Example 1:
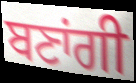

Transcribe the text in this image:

ਬਣਾਂਗੀ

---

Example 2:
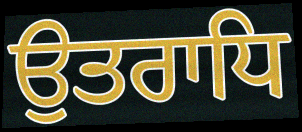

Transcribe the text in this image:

ਉਤਰਾਧਿ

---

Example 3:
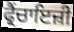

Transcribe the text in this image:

ਫ੍ਰੈਂਚਾਇਜ਼ੀ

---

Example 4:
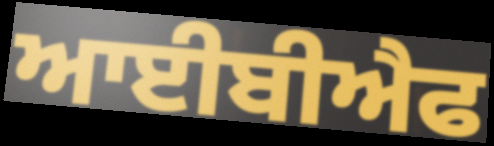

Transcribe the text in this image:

ਆਈਬੀਐਫ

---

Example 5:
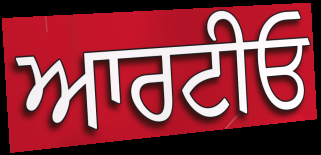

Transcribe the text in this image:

ਆਰਟੀਓ